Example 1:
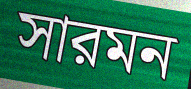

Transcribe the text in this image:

সারমন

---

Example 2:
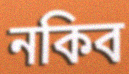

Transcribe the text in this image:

নকিব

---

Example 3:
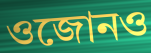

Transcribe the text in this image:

ওজোনও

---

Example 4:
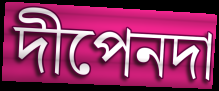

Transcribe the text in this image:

দীপেনদা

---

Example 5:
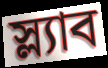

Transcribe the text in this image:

স্ল্যাব